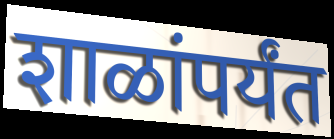
शाळांपर्यंत